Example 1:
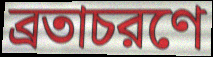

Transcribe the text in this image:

ব্রতাচরণে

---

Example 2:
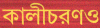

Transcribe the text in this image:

কালীচরণও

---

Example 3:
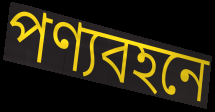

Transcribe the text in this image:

পণ্যবহনে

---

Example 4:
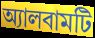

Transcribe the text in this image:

অ্যালবামটি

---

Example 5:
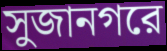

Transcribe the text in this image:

সুজানগরে